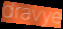
dravye